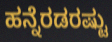
ಹನ್ನೆರಡರಷ್ಟು